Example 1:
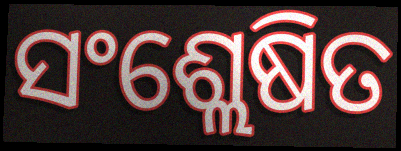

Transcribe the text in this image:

ସଂଶ୍ଲେଷିତ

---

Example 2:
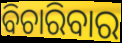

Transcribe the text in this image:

ବିଚାରିବାର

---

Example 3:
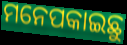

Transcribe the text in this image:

ମନେପକାଇଛୁ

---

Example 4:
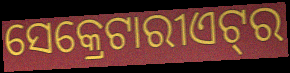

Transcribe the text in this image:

ସେକ୍ରେଟାରୀଏଟ୍‍ର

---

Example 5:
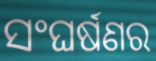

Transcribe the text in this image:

ସଂଘର୍ଷଣର